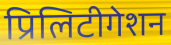
प्रिलिटीगेशन